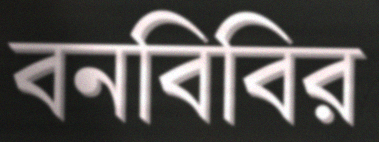
বনবিবির